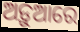
ଅଡ଼ୁଆରେ